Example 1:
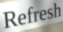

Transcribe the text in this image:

Refresh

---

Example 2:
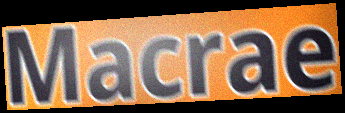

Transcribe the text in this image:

Macrae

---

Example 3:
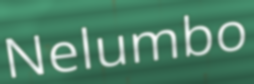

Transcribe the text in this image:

Nelumbo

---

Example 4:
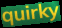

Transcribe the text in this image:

quirky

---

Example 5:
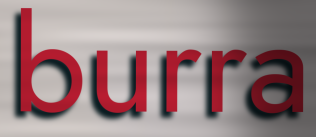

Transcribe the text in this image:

burra